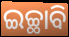
ଇଚ୍ଛାବି